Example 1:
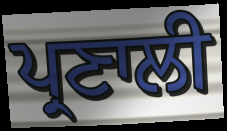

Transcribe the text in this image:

ਪ੍ਰਣਾਲੀ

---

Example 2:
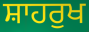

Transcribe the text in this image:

ਸ਼ਾਹਰੁਖ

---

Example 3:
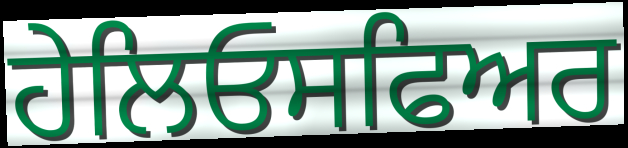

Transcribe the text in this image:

ਹੇਲਿਓਸਫਿਅਰ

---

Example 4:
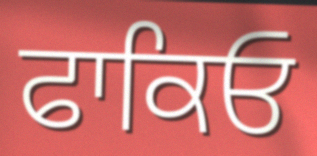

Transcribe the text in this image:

ਫਾਕਿਓ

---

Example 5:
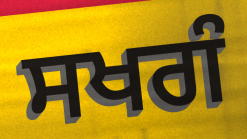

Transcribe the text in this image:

ਸਖਗੰ